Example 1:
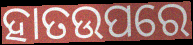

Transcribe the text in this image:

ହାତଉପରେ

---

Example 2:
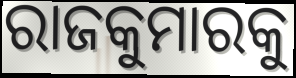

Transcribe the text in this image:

ରାଜକୁମାରକୁ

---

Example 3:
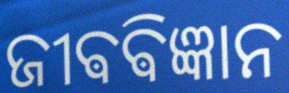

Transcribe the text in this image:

ଜୀଵଵିଜ୍ଞାନ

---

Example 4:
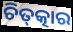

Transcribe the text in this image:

ଚିତ୍‌ତ୍କାର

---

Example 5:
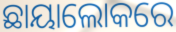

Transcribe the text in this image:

ଛାୟାଲୋକରେ